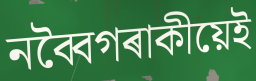
নব্বৈগৰাকীয়েই